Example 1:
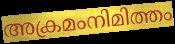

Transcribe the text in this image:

അക്രമംനിമിത്തം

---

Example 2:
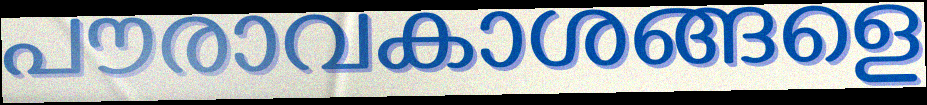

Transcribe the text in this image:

പൗരാവകാശങ്ങളെ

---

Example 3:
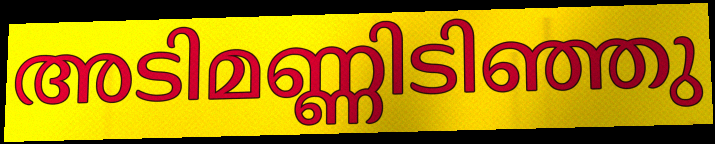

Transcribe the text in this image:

അടിമണ്ണിടിഞ്ഞു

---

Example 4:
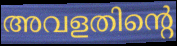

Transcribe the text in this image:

അവളതിന്റെ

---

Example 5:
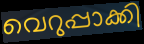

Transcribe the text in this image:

വെറുപ്പാക്കി